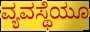
ವ್ಯವಸ್ಥೆಯೂ